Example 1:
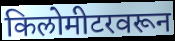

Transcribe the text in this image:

किलोमीटरवरून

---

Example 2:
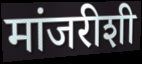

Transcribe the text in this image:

मांजरीशी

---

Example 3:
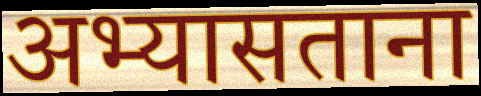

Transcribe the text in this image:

अभ्यासताना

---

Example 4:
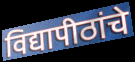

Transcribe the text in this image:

विद्यापीठांचे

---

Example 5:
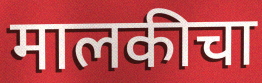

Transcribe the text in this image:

मालकीचा